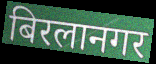
बिरलानगर